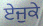
ਏਜੁਕੇ